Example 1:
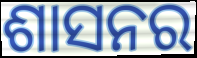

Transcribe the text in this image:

ଶାସନର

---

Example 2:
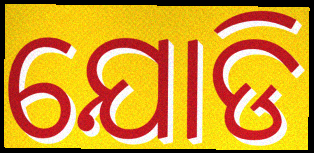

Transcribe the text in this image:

ଯୋଡି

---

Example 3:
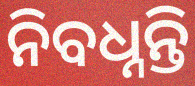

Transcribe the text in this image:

ନିବଧ୍ନନ୍ତି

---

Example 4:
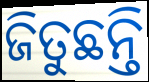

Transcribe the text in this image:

ଜିତୁଛନ୍ତି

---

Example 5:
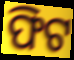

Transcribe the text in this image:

ଫିଟ